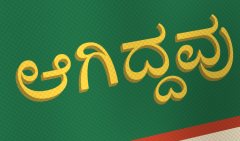
ಆಗಿದ್ದವು